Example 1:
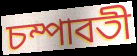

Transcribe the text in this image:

চম্পাবতী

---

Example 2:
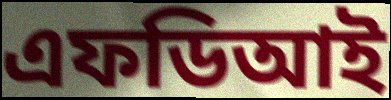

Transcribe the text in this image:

এফডিআই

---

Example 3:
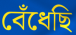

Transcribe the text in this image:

বেঁধেছি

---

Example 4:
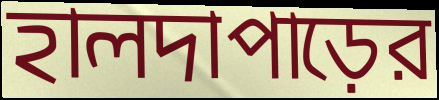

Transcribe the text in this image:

হালদাপাড়ের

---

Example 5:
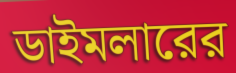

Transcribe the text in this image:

ডাইমলারের